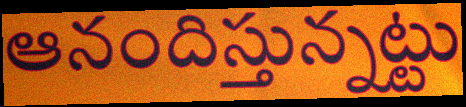
ఆనందిస్తున్నట్టు